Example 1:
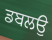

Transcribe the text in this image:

ਡਬਲਉ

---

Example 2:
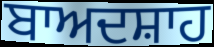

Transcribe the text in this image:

ਬਾਅਦਸ਼ਾਹ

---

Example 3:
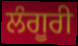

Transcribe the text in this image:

ਲੰਗੂਰੀ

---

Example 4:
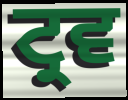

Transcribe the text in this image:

ਟ੍ਰਵ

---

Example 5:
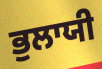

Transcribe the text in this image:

ਭੁਲਾਯੀ